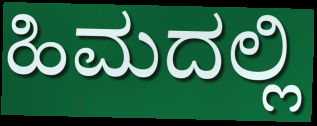
ಹಿಮದಲ್ಲಿ